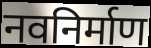
नवनिर्माण